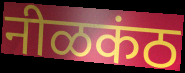
नीळकंठ